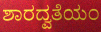
ಶಾರದ್ವತೆಯಂ